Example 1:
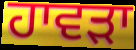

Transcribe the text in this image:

ਹਾਵਡ਼ਾ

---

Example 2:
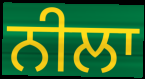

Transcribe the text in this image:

ਨੀਲਾ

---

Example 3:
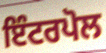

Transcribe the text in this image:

ਇੰਟਰਪੋਲ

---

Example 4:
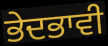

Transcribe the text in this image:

ਭੇਦਭਾਵੀ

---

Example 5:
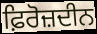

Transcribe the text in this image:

ਫ਼ਿਰੋਜ਼ਦੀਨ